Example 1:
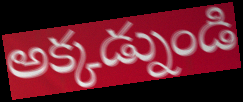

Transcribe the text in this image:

అక్కడ్నుండి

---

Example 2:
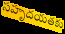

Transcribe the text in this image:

సహృదయతకు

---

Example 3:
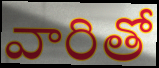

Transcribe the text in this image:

వారితో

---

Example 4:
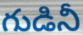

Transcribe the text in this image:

గుడినీ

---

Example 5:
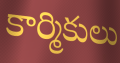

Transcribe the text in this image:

కార్మికులు